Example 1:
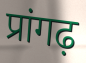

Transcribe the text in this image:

प्रांगढ़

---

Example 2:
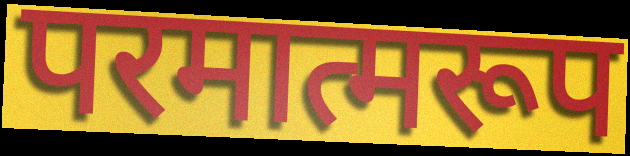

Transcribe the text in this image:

परमात्मरूप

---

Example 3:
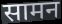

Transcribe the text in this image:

सामन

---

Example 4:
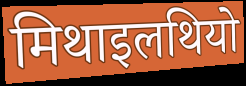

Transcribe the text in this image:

मिथाइलथियो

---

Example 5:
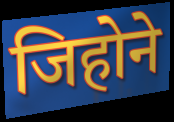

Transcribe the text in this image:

जिहोने